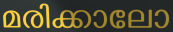
മരിക്കാലോ